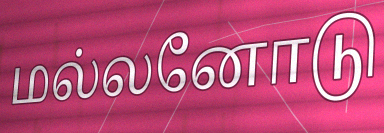
மல்லனோடு